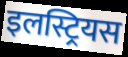
इलस्ट्रियस